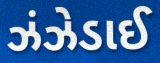
ઝંઝેડાઈ